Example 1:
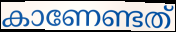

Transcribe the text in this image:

കാണേണ്ടത്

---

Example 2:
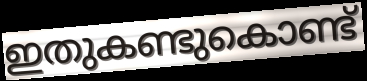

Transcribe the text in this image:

ഇതുകണ്ടുകൊണ്ട്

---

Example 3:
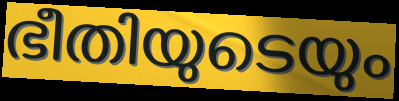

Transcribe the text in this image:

ഭീതിയുടെയും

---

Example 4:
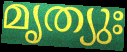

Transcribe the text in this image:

മൃത്യുഃ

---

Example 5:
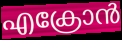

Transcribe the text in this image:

എക്രോൻ